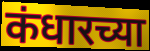
कंधारच्या